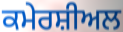
ਕਮੇਰਸ਼ੀਅਲ